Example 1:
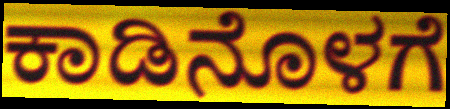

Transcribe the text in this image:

ಕಾಡಿನೊಳಗೆ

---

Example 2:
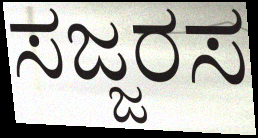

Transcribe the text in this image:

ಸಜ್ಜರಸ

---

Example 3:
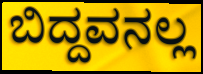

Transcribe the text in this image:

ಬಿದ್ದವನಲ್ಲ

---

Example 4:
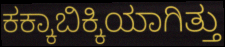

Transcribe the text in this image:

ಕಕ್ಕಾಬಿಕ್ಕಿಯಾಗಿತ್ತು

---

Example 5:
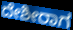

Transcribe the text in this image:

ದೇಶೀರಾಗ